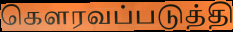
கெளரவப்படுத்தி